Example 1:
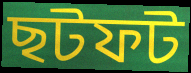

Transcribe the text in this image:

ছটফট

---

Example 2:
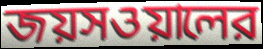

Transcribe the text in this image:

জয়সওয়ালের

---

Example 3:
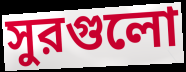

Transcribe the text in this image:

সুরগুলো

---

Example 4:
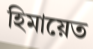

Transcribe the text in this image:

হিমায়েত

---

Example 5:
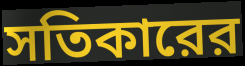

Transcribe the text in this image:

সতিকারের